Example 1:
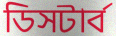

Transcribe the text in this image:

ডিসটার্ব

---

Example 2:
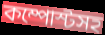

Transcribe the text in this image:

কম্পোস্টসহ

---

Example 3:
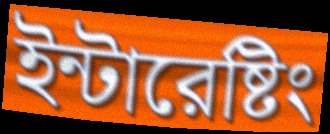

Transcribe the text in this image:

ইন্টারেষ্টিং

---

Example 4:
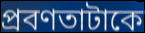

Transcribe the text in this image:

প্রবণতাটাকে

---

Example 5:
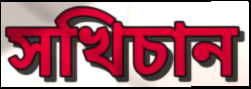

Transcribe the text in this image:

সখিচান